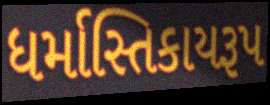
ધર્માસ્તિકાયરૂપ